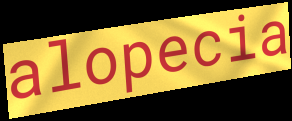
alopecia